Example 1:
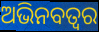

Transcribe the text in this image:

ଅଭିନବତ୍ୱର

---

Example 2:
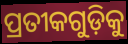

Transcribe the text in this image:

ପ୍ରତୀକଗୁଡ଼ିକୁ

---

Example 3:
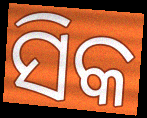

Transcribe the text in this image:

ସିକ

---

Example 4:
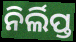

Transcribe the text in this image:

ନିର୍ଲିପ୍ତ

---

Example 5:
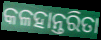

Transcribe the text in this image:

କଳହାନ୍ତରିତା